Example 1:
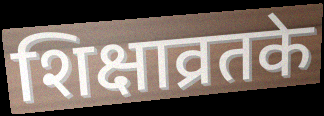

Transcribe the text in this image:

शिक्षाव्रतके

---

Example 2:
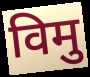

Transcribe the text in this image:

विमु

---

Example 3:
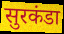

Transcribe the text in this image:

सुरकंडा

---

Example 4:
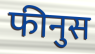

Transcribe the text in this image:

फीनुस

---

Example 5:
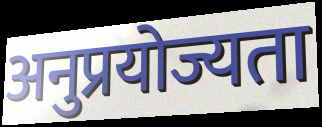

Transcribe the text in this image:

अनुप्रयोज्यता